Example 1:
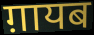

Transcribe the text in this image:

ग़ायब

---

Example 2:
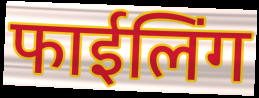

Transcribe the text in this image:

फाईलिंग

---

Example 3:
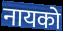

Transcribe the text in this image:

नायको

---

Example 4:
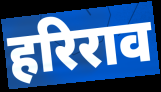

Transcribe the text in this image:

हरिराव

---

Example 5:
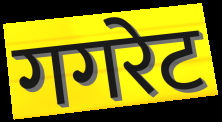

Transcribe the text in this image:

गगरेट